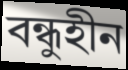
বন্ধুহীন